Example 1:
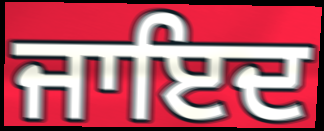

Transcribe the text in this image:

ਜਾਇਦ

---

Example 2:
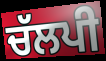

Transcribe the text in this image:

ਚੱਲਪੀ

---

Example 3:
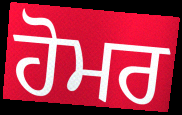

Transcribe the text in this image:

ਹੋਮਰ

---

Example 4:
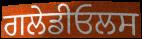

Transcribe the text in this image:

ਗਲੇਡੀਓਲਸ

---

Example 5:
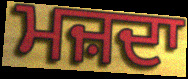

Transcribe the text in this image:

ਮਜ਼ਦਾ